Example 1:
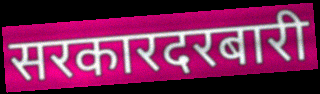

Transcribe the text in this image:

सरकारदरबारी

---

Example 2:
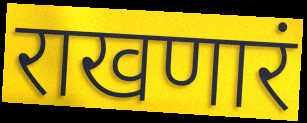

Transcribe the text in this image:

राखणारं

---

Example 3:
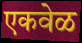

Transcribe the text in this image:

एकवेळ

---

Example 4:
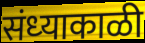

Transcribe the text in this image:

संध्‍याकाळी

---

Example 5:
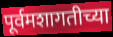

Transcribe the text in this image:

पूर्वमशागतीच्या